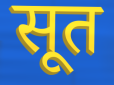
सूत